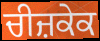
ਚੀਜ਼ਕੇਕ